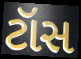
ટૉસ